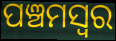
ପଞ୍ଚମସ୍ଵର